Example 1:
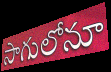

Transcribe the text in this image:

సాగులోనూ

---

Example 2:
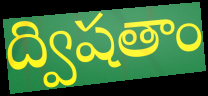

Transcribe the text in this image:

ద్విషతాం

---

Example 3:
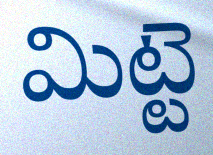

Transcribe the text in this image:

మిట్టె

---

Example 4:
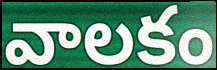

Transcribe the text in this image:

వాలకం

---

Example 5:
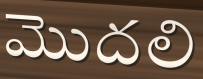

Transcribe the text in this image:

మొదలి